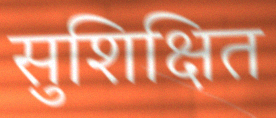
सुशिक्षित